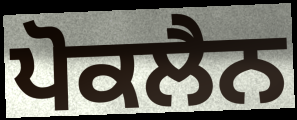
ਪੋਕਲੈਨ